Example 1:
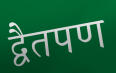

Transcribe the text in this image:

द्वैतपण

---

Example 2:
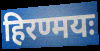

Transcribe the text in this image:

हिरण्मयः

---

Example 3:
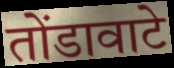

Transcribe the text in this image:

तोंडावाटे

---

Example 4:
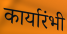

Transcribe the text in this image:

कार्यारंभी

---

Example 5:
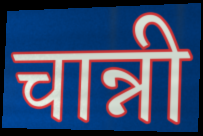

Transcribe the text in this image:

चान्नी